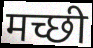
मच्छी